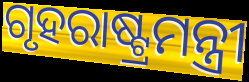
ଗୃହରାଷ୍ଟ୍ରମନ୍ତ୍ରୀ